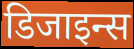
डिजाइन्स